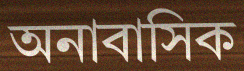
অনাবাসিক